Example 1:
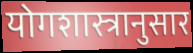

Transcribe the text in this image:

योगशास्त्रानुसार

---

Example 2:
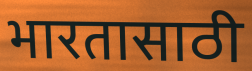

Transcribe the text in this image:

भारतासाठी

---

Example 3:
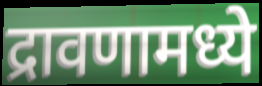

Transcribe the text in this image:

द्रावणामध्ये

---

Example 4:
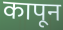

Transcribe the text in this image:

कापून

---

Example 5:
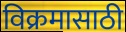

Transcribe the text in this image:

विक्रमासाठी